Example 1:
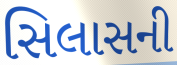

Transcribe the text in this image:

સિલાસની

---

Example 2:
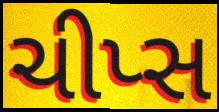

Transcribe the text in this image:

ચીપ્સ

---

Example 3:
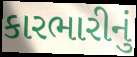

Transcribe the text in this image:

કારભારીનું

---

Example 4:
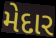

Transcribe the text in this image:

મેદાર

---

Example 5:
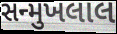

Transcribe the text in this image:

સન્મુખલાલ